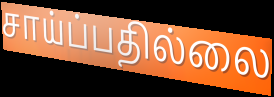
சாய்ப்பதில்லை